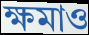
ক্ষমাও